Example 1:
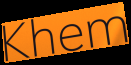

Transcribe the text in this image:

Khem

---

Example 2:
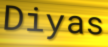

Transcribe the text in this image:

Diyas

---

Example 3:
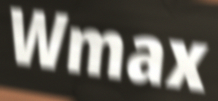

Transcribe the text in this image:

Wmax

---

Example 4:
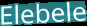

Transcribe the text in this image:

Elebele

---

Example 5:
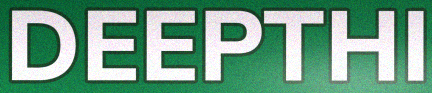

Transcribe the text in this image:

DEEPTHI